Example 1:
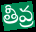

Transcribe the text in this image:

తీవ్ర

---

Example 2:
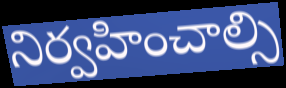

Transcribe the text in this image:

నిర్వహించాల్సి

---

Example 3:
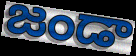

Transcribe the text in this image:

జండా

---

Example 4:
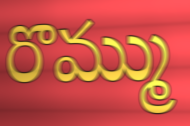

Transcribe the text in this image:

రొమ్ము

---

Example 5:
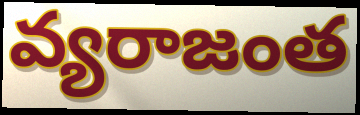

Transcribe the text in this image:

వ్యరాజంత